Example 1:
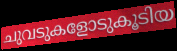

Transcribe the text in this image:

ചുവടുകളോടുകൂടിയ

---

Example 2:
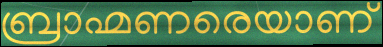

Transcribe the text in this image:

ബ്രാഹ്മണരെയാണ്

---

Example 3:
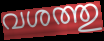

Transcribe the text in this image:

വശത്തു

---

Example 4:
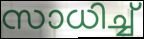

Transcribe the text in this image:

സാധിച്ച്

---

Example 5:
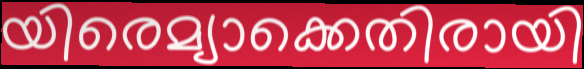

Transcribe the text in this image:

യിരെമ്യാക്കെതിരായി